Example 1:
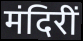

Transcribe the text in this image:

मंदिरीं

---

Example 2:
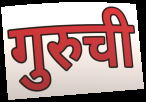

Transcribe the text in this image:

गुरुची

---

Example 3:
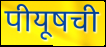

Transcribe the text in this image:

पीयूषची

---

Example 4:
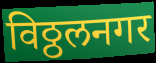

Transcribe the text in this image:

विठ्ठलनगर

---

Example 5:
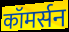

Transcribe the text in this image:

कॉमर्सन